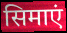
सिमाएं